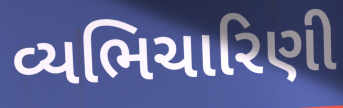
વ્યભિચારિણી